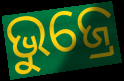
ଭୁଜ୍ରେ